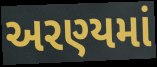
અરણ્યમાં